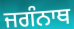
ਜਗੰਨਾਥ